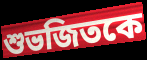
শুভজিতকে